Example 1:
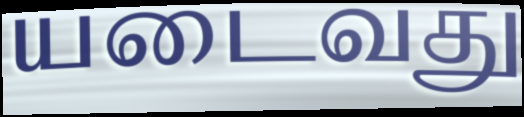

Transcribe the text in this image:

யடைவது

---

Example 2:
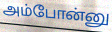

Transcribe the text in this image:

அம்போன்னு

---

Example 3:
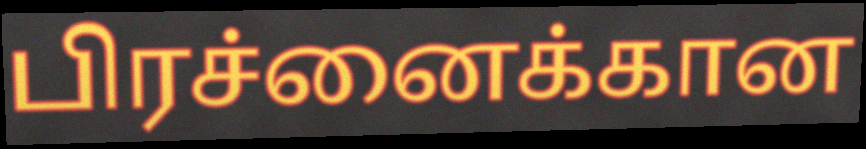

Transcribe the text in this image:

பிரச்னைக்கான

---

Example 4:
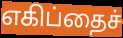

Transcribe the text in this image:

எகிப்தைச்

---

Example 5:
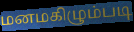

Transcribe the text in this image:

மனமகிழும்படி